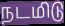
நடமிடு